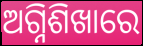
ଅଗ୍ନିଶିଖାରେ